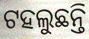
ଟହଲୁଛନ୍ତି